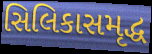
સિલિકાસમૃદ્ધ